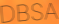
DBSA